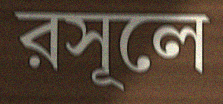
রসূলে